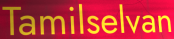
Tamilselvan